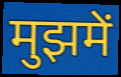
मुझमें